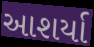
આશર્યા